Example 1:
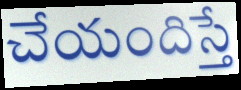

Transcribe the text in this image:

చేయందిస్తే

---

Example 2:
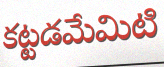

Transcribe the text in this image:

కట్టడమేమిటి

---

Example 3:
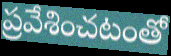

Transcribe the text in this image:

ప్రవేశించటంతో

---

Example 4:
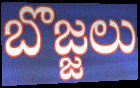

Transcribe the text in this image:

బొజ్జలు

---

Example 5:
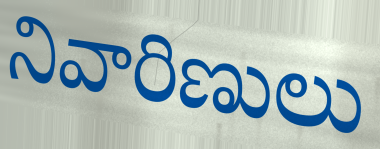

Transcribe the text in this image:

నివారిణులు